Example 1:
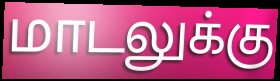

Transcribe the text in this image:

மாடலுக்கு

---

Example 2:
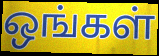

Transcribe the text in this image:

ஒங்கள்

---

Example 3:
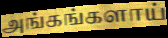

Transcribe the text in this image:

அங்கங்களாய்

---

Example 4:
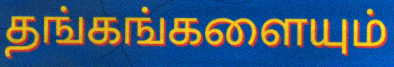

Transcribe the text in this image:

தங்கங்களையும்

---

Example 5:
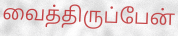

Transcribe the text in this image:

வைத்திருப்பேன்